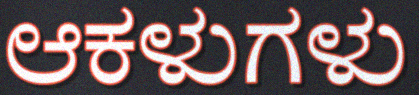
ಆಕಳುಗಳು